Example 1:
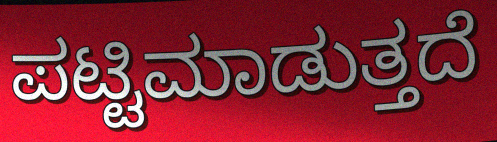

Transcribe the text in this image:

ಪಟ್ಟಿಮಾಡುತ್ತದೆ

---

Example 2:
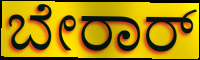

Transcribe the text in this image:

ಬೇರಾರ್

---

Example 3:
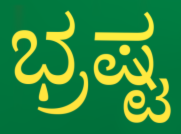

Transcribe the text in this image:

ಭ್ರಷ್ಟ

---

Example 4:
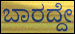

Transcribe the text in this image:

ಬಾರದ್ದೇ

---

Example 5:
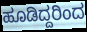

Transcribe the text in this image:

ಹೂಡಿದ್ದರಿಂದ